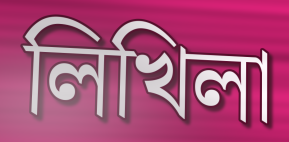
লিখিলা